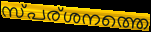
സ്പര്ശനത്തെ